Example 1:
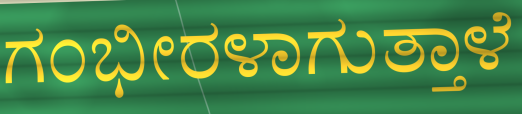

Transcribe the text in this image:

ಗಂಭೀರಳಾಗುತ್ತಾಳೆ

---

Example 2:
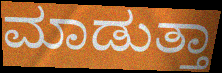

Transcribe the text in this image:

ಮಾಡುತ್ತಾ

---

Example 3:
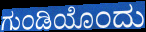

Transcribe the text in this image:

ಗುಂಡಿಯೊಂದು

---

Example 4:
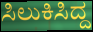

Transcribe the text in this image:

ಸಿಲುಕಿಸಿದ್ದ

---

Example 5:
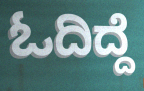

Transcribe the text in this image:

ಓದಿದ್ದೆ